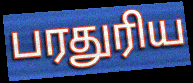
பரதுரிய